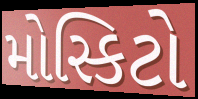
મોસ્કિટો